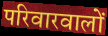
परिवारवालों